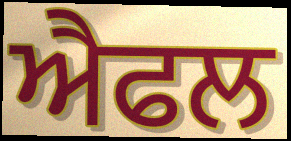
ਐਫਲ